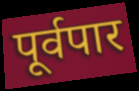
पूर्वपार